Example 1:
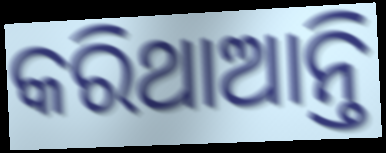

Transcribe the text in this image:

କରିଥାଆନ୍ତି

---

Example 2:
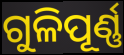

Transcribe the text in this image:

ଗୁଳିପୂର୍ଣ୍ଣ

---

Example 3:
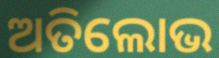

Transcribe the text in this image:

ଅତିଲୋଭ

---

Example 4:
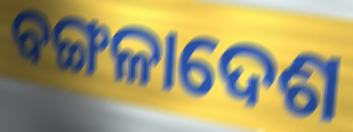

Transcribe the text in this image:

ବଙ୍ଗଳାଦେଶ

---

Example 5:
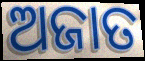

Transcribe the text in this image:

ଅଜାତ